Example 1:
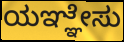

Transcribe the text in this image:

ಯಞ್ಞೇಸು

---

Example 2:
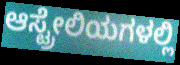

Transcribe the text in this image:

ಆಸ್ಟ್ರೇಲಿಯಗಳಲ್ಲಿ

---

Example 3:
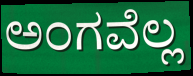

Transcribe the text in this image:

ಅಂಗವೆಲ್ಲ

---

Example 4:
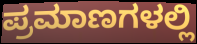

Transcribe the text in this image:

ಪ್ರಮಾಣಗಳಲ್ಲಿ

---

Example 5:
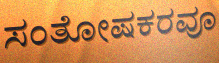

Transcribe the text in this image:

ಸಂತೋಷಕರವೂ